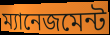
ম্যানেজমেন্ট